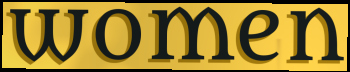
women